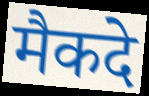
मैकदे